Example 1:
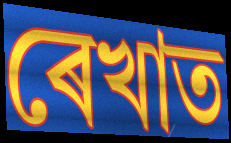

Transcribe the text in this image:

ৰেখাত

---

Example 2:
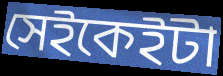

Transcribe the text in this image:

সেইকেইটা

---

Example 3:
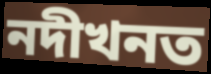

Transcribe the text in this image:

নদীখনত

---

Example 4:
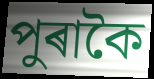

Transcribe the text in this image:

পুৰাকৈ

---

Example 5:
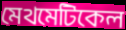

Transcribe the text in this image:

মেথমেটিকেল